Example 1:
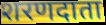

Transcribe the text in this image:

शरणदाता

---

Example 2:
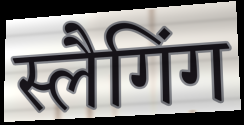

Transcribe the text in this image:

स्लैगिंग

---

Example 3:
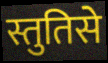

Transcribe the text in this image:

स्तुतिसे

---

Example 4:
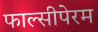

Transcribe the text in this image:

फाल्सीपेरम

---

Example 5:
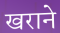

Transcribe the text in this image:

खराने